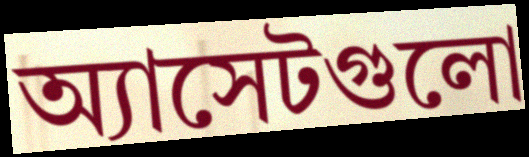
অ্যাসেটগুলো